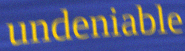
undeniable